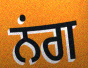
ਨਂਗ